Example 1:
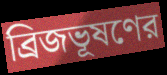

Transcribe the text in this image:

ব্রিজভূষণের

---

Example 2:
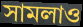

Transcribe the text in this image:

সামলাও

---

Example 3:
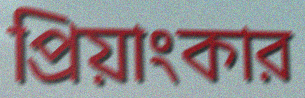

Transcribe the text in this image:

প্রিয়াংকার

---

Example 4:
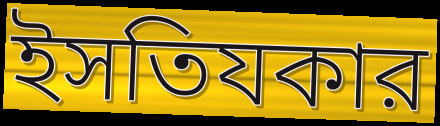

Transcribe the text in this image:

ইসতিযকার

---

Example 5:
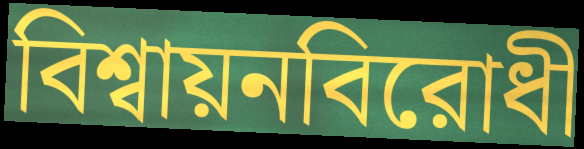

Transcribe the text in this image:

বিশ্বায়নবিরোধী